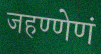
जहण्णेणं